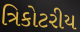
ત્રિકોટરીય